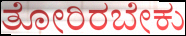
ತೋರಿರಬೇಕು